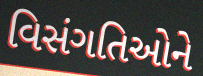
વિસંગતિઓને